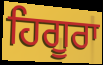
ਹਿਗੂਰਾ